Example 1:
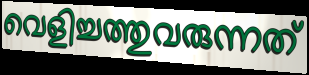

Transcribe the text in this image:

വെളിച്ചത്തുവരുന്നത്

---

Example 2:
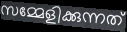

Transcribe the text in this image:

സമ്മേളിക്കുന്നത്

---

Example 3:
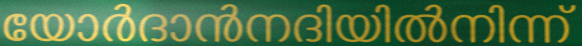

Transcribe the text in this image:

യോർദാൻനദിയിൽനിന്ന്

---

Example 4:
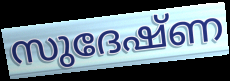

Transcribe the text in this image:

സുദേഷ്ണ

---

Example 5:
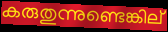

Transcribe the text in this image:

കരുതുന്നുണ്ടെങ്കില്